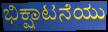
ಭಿಕ್ಷಾಟನೆಯು